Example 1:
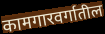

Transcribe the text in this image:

कामगारवर्गातील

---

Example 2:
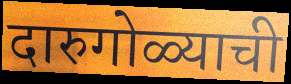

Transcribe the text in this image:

दारुगोळ्याची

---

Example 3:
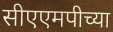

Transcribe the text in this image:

सीएएमपीच्या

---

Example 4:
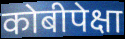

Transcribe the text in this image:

कोबीपेक्षा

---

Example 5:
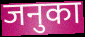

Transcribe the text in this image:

जनुका